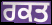
ਰਕਤ